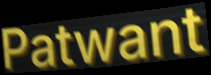
Patwant